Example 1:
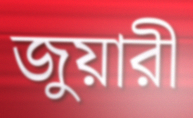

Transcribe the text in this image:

জুয়ারী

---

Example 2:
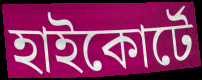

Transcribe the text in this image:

হাইকোর্টে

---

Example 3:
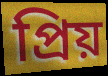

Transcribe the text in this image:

প্রিয়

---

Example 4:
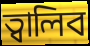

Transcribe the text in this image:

ত্বালিব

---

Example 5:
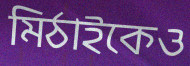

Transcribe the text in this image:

মিঠাইকেও